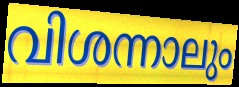
വിശന്നാലും